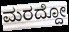
ಮರದ್ದೋ